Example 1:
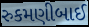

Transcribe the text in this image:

રુકમણીબાઈ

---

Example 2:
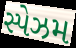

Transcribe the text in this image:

સ્પેઝમ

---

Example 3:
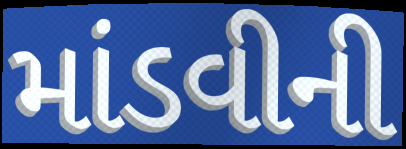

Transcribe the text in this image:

માંડવીની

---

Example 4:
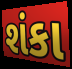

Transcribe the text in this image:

શંકા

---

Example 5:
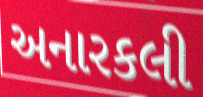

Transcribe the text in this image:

અનારકલી